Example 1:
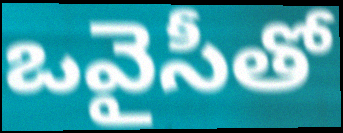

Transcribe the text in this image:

ఒవైసీతో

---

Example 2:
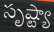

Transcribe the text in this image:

సృష్ట్యా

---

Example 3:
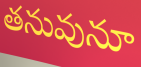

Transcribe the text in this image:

తనువునూ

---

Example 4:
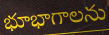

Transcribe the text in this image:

భూభాగాలను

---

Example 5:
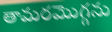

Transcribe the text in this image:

తామరమొగ్గను